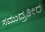
ಸಮುದ್ರತೀರ